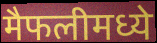
मैफलीमध्ये